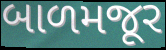
બાળમજૂર